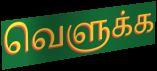
வெளுக்க